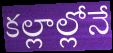
కల్లాల్లోనే